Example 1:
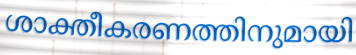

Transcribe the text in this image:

ശാക്തീകരണത്തിനുമായി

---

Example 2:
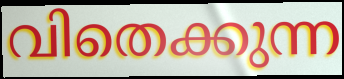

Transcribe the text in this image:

വിതെക്കുന്ന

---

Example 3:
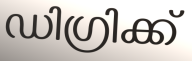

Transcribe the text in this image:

ഡിഗ്രിക്ക്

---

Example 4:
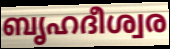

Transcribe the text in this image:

ബൃഹദീശ്വര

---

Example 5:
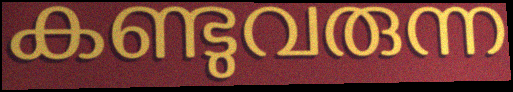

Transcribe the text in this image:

കണ്ടുവരുന്ന